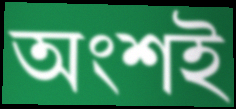
অংশই